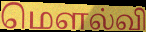
மௌல்வி